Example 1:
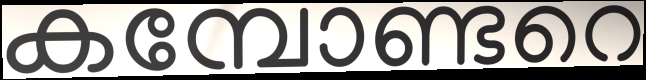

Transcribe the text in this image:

കമ്പോണ്ടറെ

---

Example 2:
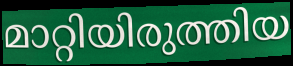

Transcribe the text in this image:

മാറ്റിയിരുത്തിയ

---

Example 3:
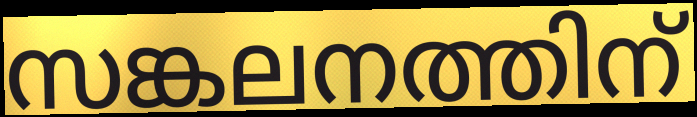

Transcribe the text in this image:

സങ്കലനത്തിന്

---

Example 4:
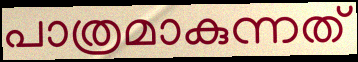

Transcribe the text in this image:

പാത്രമാകുന്നത്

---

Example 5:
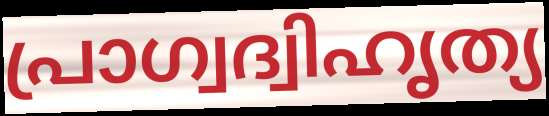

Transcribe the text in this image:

പ്രാഗ്വദ്വിഹൃത്യ